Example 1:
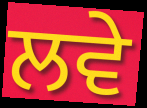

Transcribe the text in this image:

ਲਵੇ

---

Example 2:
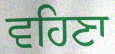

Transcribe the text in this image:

ਵਹਿਣਾ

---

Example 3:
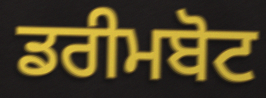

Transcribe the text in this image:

ਡਰੀਮਬੋਟ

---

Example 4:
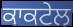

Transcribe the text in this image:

ਕਾਕਟੇਲ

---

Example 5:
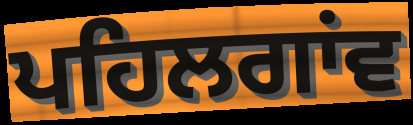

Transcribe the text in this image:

ਪਹਿਲਗਾਂਵ